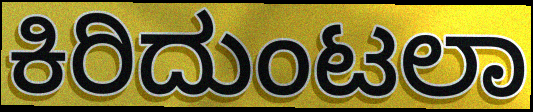
ಕಿರಿದುಂಟಲಾ